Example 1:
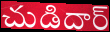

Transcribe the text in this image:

చుడిదార్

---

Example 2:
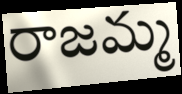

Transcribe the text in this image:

రాజమ్మ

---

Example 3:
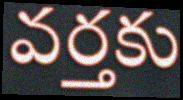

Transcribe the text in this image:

వర్తకు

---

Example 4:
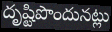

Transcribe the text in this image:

దృష్టిపొందునట్లు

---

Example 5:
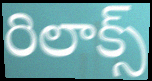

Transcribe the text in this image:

రిలాక్స్